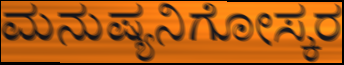
ಮನುಷ್ಯನಿಗೋಸ್ಕರ